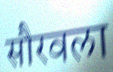
सौरवला